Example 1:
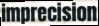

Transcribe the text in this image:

imprecision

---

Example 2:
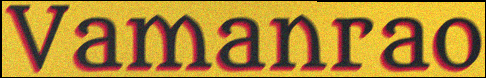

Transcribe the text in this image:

Vamanrao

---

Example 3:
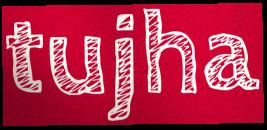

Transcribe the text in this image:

tujha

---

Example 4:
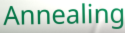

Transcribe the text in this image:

Annealing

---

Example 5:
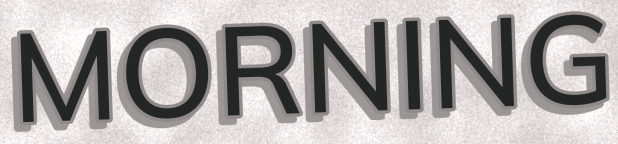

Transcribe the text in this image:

MORNING